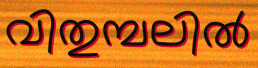
വിതുമ്പലിൽ